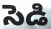
సెడి